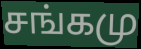
சங்கமு